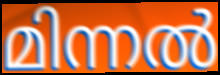
മിന്നൽ